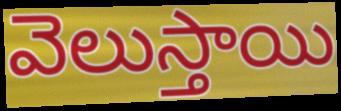
వెలుస్తాయి